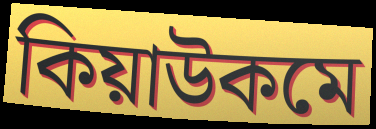
কিয়াউকমে